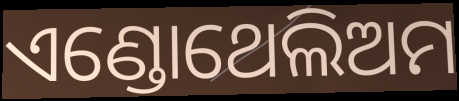
ଏଣ୍ଡୋଥେଲିଅମ